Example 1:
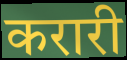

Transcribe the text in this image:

करारी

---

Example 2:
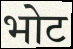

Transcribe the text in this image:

भोट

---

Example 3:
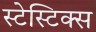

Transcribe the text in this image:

स्टेस्टिक्स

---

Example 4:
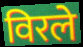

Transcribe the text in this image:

विरले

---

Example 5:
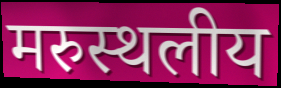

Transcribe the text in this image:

मरुस्थलीय